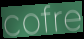
cofre